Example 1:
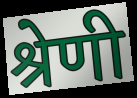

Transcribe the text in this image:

श्रेणी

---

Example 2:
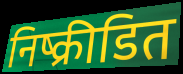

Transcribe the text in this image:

निष्क्रीडित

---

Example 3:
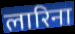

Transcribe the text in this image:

लारिना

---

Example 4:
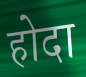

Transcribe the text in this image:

होदा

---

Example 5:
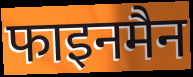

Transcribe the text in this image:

फाइनमैन